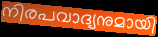
നിരപവാദ്യനുമായി